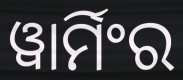
ୱାର୍ମିଂର